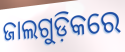
ଜାଲଗୁଡ଼ିକରେ